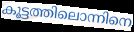
കൂട്ടത്തിലൊന്നിനെ